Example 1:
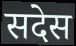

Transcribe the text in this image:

सदेस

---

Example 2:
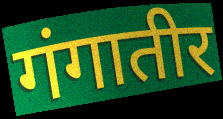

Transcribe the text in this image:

गंगातीर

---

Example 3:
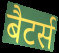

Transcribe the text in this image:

बैटर्स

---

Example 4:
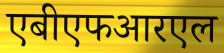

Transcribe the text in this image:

एबीएफआरएल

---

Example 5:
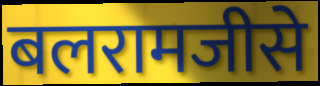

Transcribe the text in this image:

बलरामजीसे